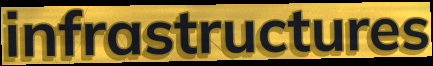
infrastructures